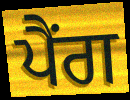
ਪੈਂਗ